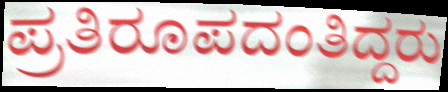
ಪ್ರತಿರೂಪದಂತಿದ್ದರು